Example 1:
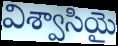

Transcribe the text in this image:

విశ్వాసియై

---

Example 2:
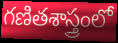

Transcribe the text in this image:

గణితశాస్త్రంలో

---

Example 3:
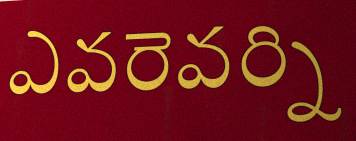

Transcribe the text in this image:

ఎవరెవర్ని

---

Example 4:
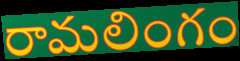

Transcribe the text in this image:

రామలింగం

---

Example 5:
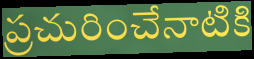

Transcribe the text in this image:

ప్రచురించేనాటికి